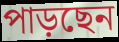
পাড়ছেন